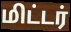
மிட்டர்